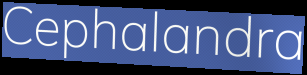
Cephalandra